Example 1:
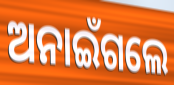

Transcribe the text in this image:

ଅନାଇଁଗଲେ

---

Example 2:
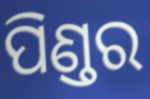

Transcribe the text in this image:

ପିଣ୍ଡର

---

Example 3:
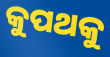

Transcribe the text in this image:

କୁପଥକୁ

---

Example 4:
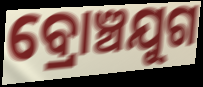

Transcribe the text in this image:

ବ୍ରୋଞ୍ଚଯୁଗ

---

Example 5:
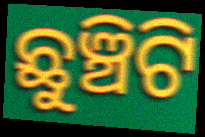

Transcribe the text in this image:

ଛୁଞ୍ଚିଟି